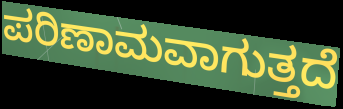
ಪರಿಣಾಮವಾಗುತ್ತದೆ